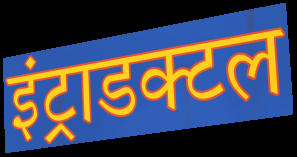
इंट्राडक्टल